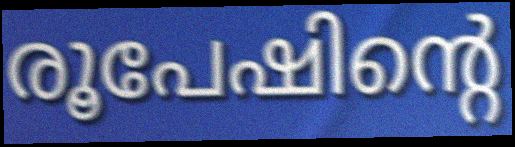
രൂപേഷിന്റെ